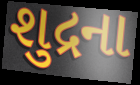
શુદ્રના